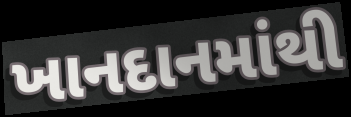
ખાનદાનમાંથી